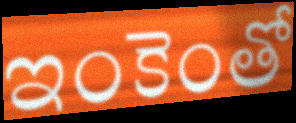
ఇంకెంతో